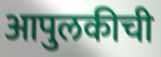
आपुलकीची